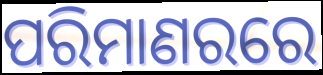
ପରିମାଣରରେ